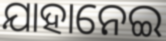
ଯାହାନେଇ